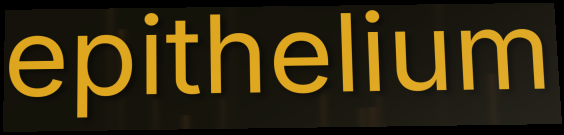
epithelium